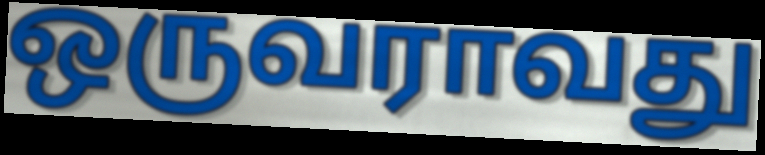
ஒருவராவது